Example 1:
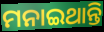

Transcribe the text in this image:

ମନାଇଥାନ୍ତି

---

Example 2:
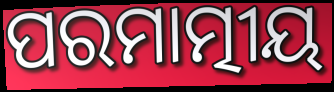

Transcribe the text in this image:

ପରମାତ୍ମୀୟ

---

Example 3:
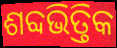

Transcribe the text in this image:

ଶବ୍ଦଭିତ୍ତିକ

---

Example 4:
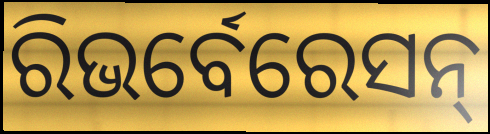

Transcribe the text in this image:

ରିଭର୍ବେରେସନ୍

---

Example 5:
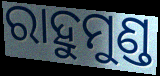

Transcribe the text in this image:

ରାହୁମୁଣ୍ଡ